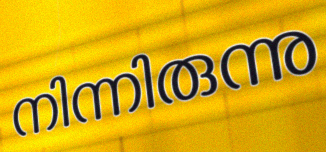
നിന്നിരുന്നു